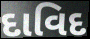
દાવિદ